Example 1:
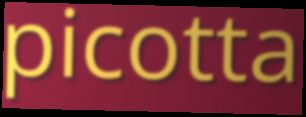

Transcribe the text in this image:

picotta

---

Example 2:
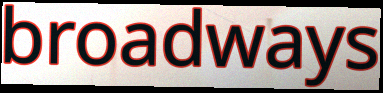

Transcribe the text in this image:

broadways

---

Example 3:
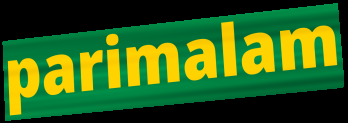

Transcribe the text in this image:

parimalam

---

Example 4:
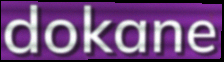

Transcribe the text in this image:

dokane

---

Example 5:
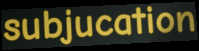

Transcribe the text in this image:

subjucation